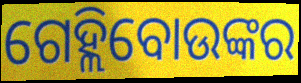
ଗେହ୍ଲିବୋଉଙ୍କର